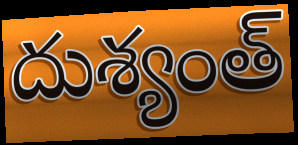
దుశ్యంత్